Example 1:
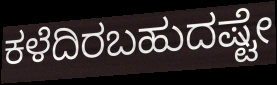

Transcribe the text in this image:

ಕಳೆದಿರಬಹುದಷ್ಟೇ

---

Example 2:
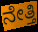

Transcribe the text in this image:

ನೇತ್ತಿ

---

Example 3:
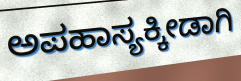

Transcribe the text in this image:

ಅಪಹಾಸ್ಯಕ್ಕೀಡಾಗಿ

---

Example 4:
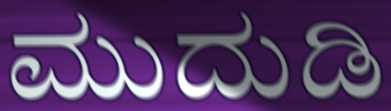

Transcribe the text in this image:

ಮುದುಡಿ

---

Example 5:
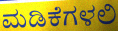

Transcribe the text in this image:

ಮಡಿಕೆಗಳಲಿ